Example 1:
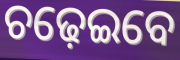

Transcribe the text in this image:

ଚଢ଼େଇବେ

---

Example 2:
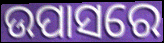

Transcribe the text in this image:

ଉପାସରେ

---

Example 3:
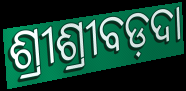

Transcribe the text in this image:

ଶ୍ରୀଶ୍ରୀବଡ଼ଦା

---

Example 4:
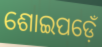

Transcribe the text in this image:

ଶୋଇପଡ଼େଁ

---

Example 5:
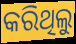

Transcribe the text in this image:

କରିଥିଲୁ